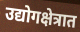
उद्योगक्षेत्रात